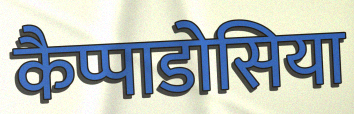
कैप्पाडोसिया